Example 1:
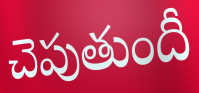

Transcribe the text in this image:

చెపుతుందీ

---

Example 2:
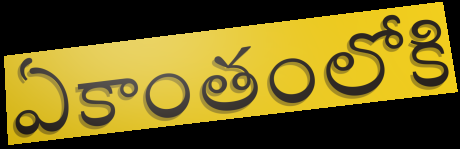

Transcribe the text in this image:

ఏకాంతంలోకి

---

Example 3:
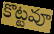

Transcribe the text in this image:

కొట్టవూ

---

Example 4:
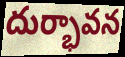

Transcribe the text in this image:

దుర్భావన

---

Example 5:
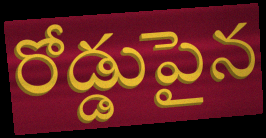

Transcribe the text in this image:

రోడ్డుపైన